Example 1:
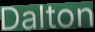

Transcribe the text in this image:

Dalton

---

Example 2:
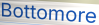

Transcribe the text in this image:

Bottomore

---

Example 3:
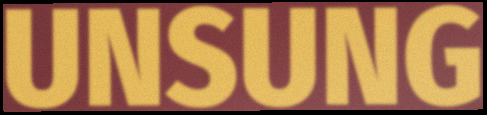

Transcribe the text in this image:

UNSUNG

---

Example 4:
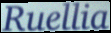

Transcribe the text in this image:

Ruellia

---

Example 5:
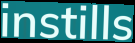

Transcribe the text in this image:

instills